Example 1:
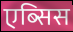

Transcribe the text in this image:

एब्सिस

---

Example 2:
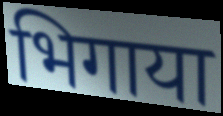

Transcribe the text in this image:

भिगाया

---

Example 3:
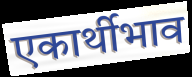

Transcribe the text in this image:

एकार्थीभाव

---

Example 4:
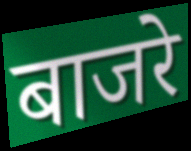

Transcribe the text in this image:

बाजरे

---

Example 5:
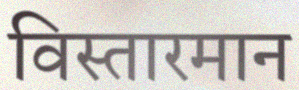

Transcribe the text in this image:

विस्तारमान